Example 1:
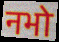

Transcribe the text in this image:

नभो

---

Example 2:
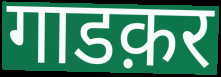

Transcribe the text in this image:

गाडक़र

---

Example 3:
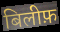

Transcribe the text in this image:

बिलीफ़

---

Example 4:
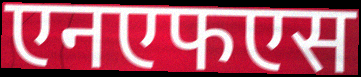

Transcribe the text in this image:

एनएफएस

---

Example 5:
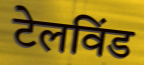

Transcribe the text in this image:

टेलविंड